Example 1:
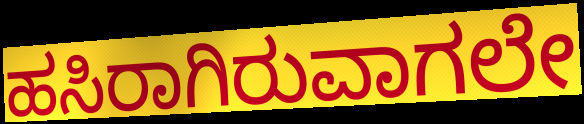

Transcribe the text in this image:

ಹಸಿರಾಗಿರುವಾಗಲೇ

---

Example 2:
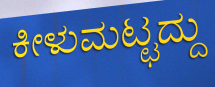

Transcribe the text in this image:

ಕೀಳುಮಟ್ಟದ್ದು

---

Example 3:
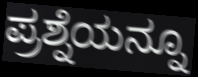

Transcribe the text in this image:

ಪ್ರಶ್ನೆಯನ್ನೂ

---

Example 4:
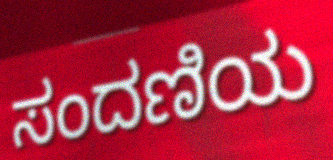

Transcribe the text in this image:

ಸಂದಣಿಯ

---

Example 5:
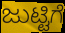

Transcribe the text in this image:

ಜುಟ್ಟಿಗೆ